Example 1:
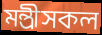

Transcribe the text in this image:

মন্ত্ৰীসকল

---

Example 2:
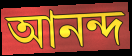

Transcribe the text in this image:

আনন্দ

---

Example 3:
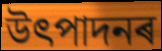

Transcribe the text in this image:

উৎপাদনৰ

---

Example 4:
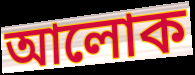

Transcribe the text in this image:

আলোক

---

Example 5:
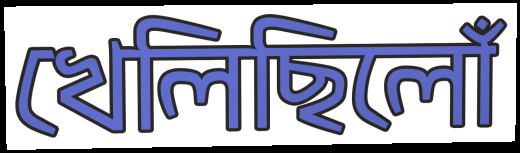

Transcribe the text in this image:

খেলিছিলোঁ